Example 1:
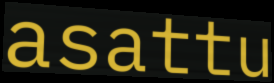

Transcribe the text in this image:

asattu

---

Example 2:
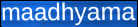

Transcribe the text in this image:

maadhyama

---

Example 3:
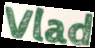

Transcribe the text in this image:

Vlad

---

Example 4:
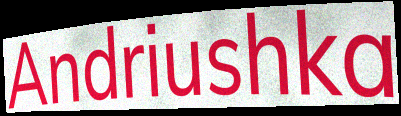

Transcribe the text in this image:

Andriushka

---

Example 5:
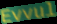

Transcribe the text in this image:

Evvul